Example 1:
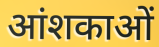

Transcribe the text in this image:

आंशकाओं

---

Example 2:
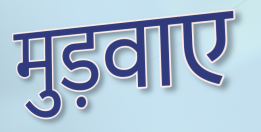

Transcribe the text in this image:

मुड़वाए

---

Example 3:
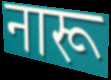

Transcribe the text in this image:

नारू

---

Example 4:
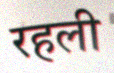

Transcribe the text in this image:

रहली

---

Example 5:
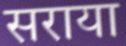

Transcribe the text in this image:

सराया